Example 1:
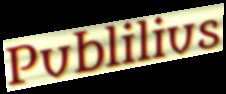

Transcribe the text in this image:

Publilius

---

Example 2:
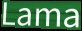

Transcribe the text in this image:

Lama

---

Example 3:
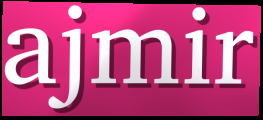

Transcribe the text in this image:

ajmir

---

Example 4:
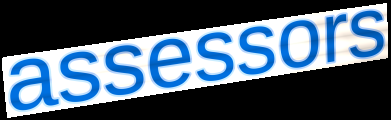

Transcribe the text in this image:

assessors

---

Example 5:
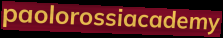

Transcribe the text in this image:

paolorossiacademy